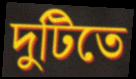
দুটিতে